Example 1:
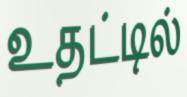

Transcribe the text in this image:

உதட்டில்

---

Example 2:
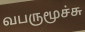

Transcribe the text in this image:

வபருமூச்சு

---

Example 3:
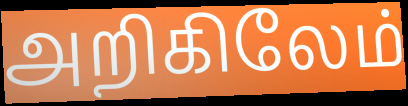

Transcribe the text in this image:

அறிகிலேம்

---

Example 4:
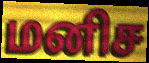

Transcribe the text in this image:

மனிச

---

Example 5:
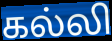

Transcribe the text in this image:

கல்லி